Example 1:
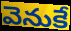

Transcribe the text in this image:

వెనుకే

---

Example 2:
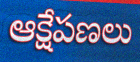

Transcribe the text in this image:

ఆక్షేపణలు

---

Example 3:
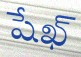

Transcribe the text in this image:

షేఖ్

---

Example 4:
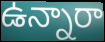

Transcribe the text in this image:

ఉన్నారా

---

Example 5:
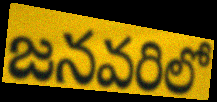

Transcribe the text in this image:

జనవరిలో